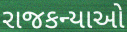
રાજકન્યાઓ